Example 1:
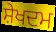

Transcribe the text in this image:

ਸ਼ੇਖਦਮ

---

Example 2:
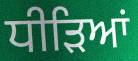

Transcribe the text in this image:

ਧੀੜਿਆਂ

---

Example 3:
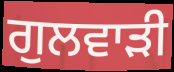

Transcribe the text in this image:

ਗੁਲਵਾੜੀ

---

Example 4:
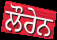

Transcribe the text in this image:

ਲੌਰੇਨ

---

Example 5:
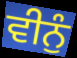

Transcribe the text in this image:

ਵੀਨੁੰ